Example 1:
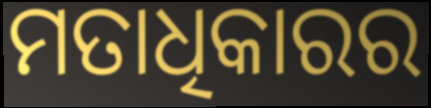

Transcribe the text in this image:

ମତାଧିକାରର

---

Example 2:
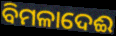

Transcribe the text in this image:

ବିମଳାଦେଈ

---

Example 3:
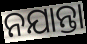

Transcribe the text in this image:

ନଯାନ୍ତା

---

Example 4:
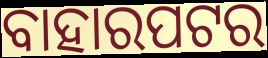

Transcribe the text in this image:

ବାହାରପଟର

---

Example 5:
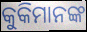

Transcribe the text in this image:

କୁକିମାନଙ୍କ